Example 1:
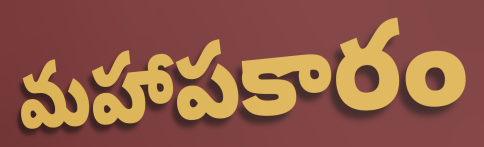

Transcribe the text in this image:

మహాపకారం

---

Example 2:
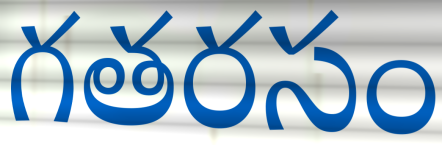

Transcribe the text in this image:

గతరసం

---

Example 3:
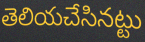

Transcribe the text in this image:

తెలియచేసినట్టు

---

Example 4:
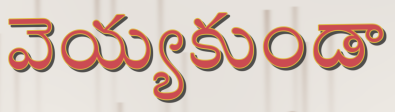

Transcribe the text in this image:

వెయ్యకుండా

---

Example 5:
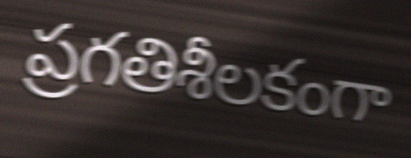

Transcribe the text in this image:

ప్రగతిశీలకంగా